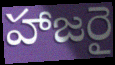
హాజరై